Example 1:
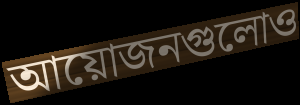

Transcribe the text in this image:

আয়োজনগুলোও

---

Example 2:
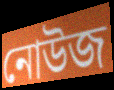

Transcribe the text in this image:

নোউজ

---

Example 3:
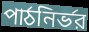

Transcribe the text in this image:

পাঠনির্ভর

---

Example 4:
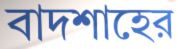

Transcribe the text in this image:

বাদশাহের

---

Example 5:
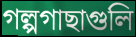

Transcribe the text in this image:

গল্পগাছাগুলি